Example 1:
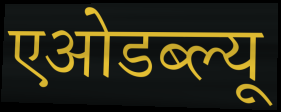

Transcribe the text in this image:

एओडब्ल्यू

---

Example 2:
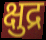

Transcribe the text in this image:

क्षुद्र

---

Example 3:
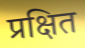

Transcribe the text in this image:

प्रक्षित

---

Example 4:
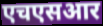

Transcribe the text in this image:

एचएसआर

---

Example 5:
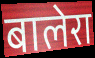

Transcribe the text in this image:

बालेरा